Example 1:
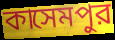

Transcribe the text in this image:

কাসেমপুর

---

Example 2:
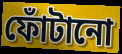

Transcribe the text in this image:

ফোঁটানো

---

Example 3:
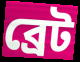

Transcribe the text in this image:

ব্রেট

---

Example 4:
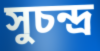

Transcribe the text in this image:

সুচন্দ্র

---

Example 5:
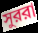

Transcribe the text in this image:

সুররা